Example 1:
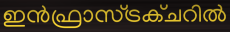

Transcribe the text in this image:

ഇൻഫ്രാസ്ട്രക്ചറിൽ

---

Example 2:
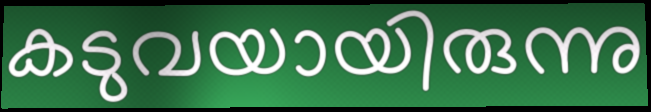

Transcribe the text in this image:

കടുവയായിരുന്നു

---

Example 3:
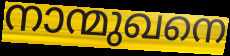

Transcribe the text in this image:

നാന്മുഖനെ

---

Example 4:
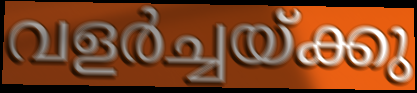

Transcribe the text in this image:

വളർച്ചയ്ക്കു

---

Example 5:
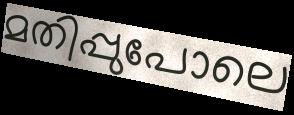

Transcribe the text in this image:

മതിപ്പുപോലെ